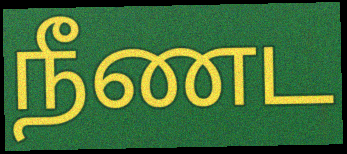
நீணட